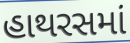
હાથરસમાં